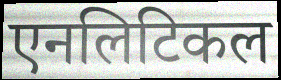
एनलिटिकल